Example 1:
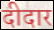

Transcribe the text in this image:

दीदार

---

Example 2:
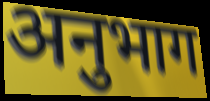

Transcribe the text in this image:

अनुभाग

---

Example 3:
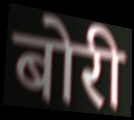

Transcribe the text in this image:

बोरी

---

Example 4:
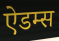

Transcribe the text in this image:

ऐडम्स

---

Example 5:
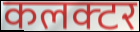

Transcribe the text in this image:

कलक्‍टर